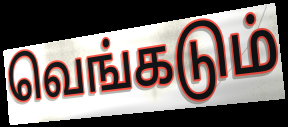
வெங்கடும்